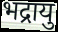
भद्रायु